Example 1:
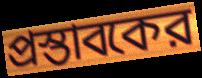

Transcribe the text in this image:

প্রস্তাবকের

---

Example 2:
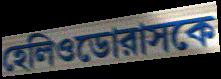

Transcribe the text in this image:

হেলিওডোরাসকে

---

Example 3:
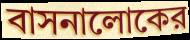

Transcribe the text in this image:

বাসনালোকের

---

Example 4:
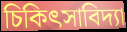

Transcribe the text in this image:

চিকিৎসাবিদ্যা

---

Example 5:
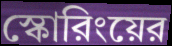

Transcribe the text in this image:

স্কোরিংয়ের